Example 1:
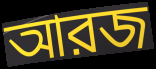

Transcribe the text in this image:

আরজ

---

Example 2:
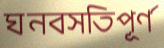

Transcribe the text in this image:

ঘনবসতিপূর্ণ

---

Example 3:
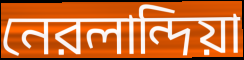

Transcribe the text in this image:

নেরলান্দিয়া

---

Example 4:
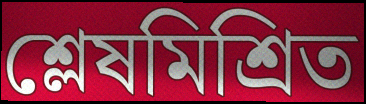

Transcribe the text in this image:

শ্লেষমিশ্রিত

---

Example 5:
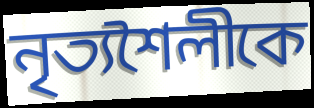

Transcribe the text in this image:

নৃত্যশৈলীকে